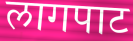
लागपाट